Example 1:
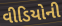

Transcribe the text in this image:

વીડિયોની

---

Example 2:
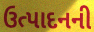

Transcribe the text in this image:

ઉત્પાદનની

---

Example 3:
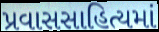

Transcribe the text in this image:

પ્રવાસસાહિત્યમાં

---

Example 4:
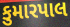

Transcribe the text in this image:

કુમારપાલ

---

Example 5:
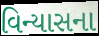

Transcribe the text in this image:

વિન્યાસના